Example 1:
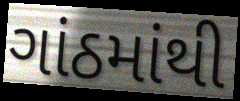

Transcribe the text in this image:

ગાંઠમાંથી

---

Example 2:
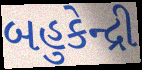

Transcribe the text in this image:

બહુકેન્દ્રી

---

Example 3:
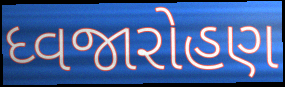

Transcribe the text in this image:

ધ્વજારોહણ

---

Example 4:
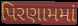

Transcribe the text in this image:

પિરણામમાં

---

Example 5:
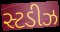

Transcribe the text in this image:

સ્ટડીઝ